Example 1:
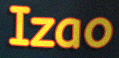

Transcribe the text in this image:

Izao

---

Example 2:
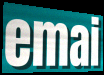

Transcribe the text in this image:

emai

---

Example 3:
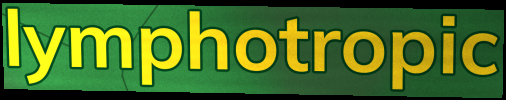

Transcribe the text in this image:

lymphotropic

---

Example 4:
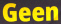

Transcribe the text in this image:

Geen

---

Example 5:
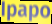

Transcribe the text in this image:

Ipapo